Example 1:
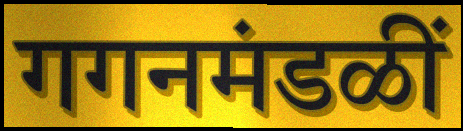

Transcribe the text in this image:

गगनमंडळीं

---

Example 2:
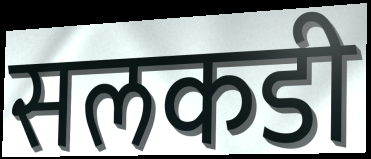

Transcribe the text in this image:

सलकडी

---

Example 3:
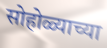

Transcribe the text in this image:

सोहोळ्याच्या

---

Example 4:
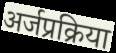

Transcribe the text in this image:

अर्जप्रक्रिया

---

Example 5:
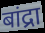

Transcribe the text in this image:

बांद्रा